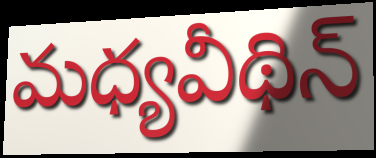
మధ్యవీథిన్